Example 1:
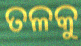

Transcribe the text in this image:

ତଳକୁ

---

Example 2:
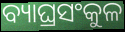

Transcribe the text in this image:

ବ୍ୟାଘ୍ରସଂକୁଳ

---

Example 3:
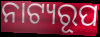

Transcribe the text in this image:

ନାଟ୍ୟରୂପ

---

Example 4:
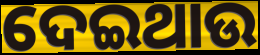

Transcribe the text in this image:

ଦେଇଥାଉ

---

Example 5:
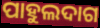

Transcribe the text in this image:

ପାହୁଲଦାଗ